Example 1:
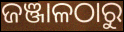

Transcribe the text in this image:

ଜଞ୍ଜାଳଠାରୁ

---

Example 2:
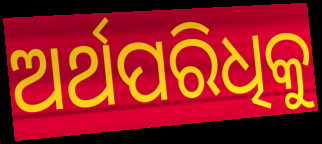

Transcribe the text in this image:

ଅର୍ଥପରିଧିକୁ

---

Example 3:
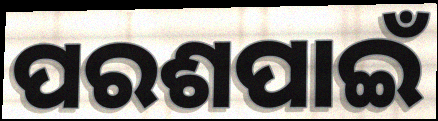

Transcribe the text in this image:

ପରଶପାଇଁ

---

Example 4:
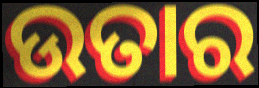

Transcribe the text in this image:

ଉତାର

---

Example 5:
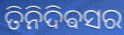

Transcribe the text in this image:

ତିନିଦିଵସର